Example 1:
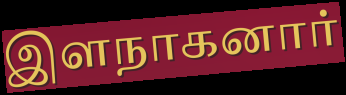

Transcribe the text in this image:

இளநாகனார்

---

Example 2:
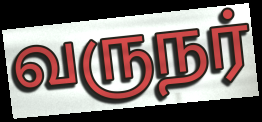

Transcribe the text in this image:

வருநர்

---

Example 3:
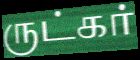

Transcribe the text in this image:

ருட்கர்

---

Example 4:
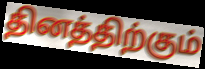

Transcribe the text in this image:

தினத்திற்கும்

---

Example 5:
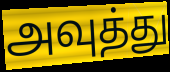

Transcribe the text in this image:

அவுத்து